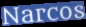
Narcos